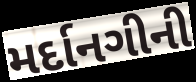
મર્દાનગીની